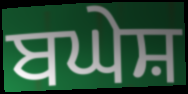
ਬਘੇਸ਼